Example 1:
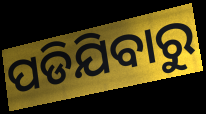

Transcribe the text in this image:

ପଡିଯିବାରୁ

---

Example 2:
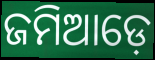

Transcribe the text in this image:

ଜମିଆଡ଼େ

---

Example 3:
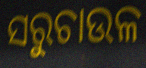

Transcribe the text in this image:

ସରୁଚାଉଳ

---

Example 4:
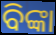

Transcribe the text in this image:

ବିଙ୍କା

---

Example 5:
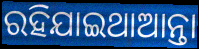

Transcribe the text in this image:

ରହିଯାଇଥାଆନ୍ତା